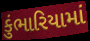
કુંભારિયામાં